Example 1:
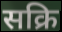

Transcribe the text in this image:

सक्रि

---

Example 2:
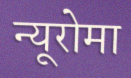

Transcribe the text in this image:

न्यूरोमा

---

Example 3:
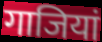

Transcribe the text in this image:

गाजियां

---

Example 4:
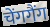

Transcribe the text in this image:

चेंगगैंग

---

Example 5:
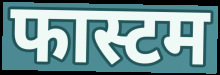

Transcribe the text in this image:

फास्टम